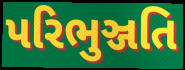
પરિભુઞ્જતિ